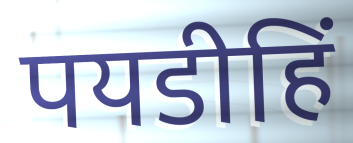
पयडीहिं